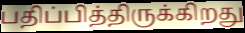
பதிப்பித்திருக்கிறது